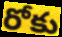
రోకు